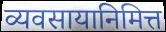
व्यवसायानिमित्त